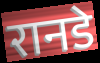
रानडे